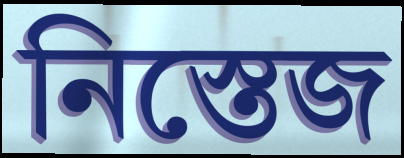
নিস্তেজ